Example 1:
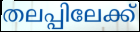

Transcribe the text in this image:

തലപ്പിലേക്ക്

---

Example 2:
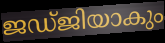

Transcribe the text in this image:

ജഡ്ജിയാകും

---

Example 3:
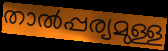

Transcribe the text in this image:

താൽപ്പര്യമുള്ള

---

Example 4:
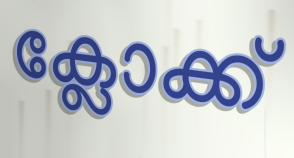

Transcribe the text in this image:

ക്ലോക്ക്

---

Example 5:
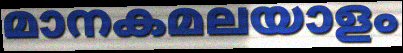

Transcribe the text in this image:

മാനകമലയാളം